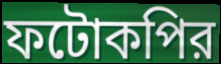
ফটোকপির